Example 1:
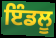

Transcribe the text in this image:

ਇੰਡਲੂ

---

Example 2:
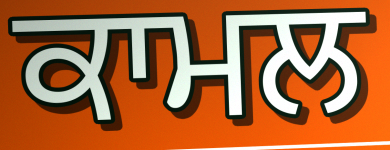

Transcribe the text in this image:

ਕਾਮਲ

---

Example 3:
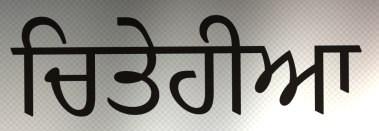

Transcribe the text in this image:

ਚਿਤੇਹੀਆ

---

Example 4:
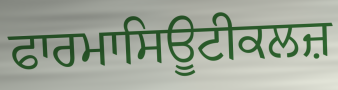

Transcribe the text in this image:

ਫਾਰਮਾਸਿਊਟੀਕਲਜ਼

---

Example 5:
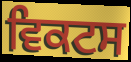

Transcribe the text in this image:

ਵਿਕਟਸ